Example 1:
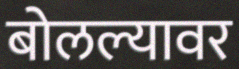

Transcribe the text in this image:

बोलल्यावर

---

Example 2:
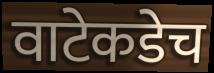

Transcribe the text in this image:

वाटेकडेच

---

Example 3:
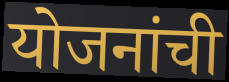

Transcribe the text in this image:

योजनांची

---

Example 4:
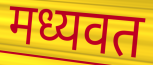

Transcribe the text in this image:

मध्यवत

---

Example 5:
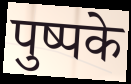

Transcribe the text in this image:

पुष्पके